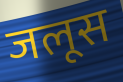
जलूस